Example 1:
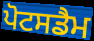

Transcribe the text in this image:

ਪੋਟਸਡੈਮ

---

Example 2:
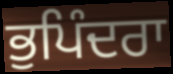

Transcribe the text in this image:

ਭੁਪਿੰਦਰਾ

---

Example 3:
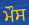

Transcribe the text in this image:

ਮੌਸ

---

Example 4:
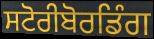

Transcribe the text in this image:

ਸਟੋਰੀਬੋਰਡਿੰਗ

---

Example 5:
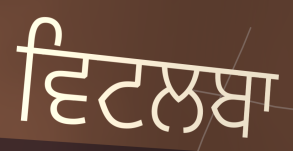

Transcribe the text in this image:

ਵਿਟਲਬਾ